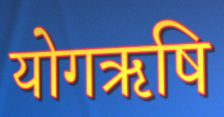
योगऋषि